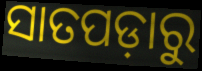
ସାତପଡ଼ାରୁ